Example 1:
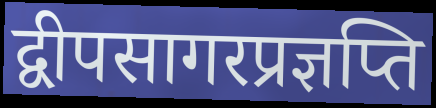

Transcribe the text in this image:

द्वीपसागरप्रज्ञप्ति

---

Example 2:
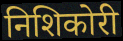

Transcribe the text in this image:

निशिकोरी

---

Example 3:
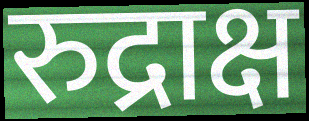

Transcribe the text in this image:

रुद्राक्ष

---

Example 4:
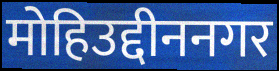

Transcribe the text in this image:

मोहिउद्दीननगर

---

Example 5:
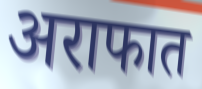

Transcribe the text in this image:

अराफात